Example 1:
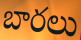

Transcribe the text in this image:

బారలు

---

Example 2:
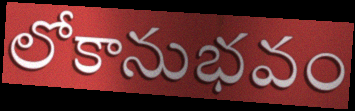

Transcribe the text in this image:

లోకానుభవం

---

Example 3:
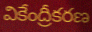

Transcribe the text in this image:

వికేంద్రీకరణ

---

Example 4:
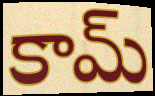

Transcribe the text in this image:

కామ్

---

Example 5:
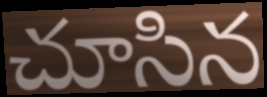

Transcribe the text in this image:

చూసిన